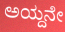
ಅಯ್ದನೇ